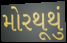
મોરથૂથું